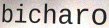
bicharo